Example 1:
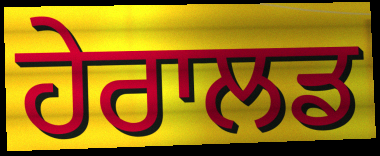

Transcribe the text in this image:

ਹੇਰਾਲਡ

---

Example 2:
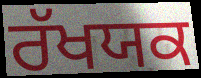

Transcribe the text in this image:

ਰੱਖਯਕ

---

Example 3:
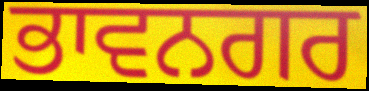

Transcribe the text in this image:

ਭਾਵਨਗਰ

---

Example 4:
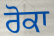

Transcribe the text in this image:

ਰੋਕਾ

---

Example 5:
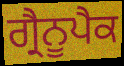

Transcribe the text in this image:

ਗ੍ਰੈਨੂਪੈਕ